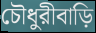
চৌধুরীবাড়ি